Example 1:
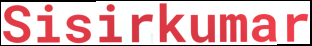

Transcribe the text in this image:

Sisirkumar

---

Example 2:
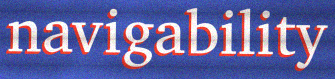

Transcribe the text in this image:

navigability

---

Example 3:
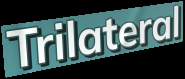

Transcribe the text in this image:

Trilateral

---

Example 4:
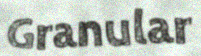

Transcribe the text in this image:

Granular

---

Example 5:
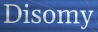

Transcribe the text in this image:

Disomy